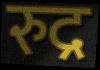
रुद्र